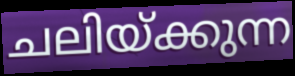
ചലിയ്ക്കുന്ന